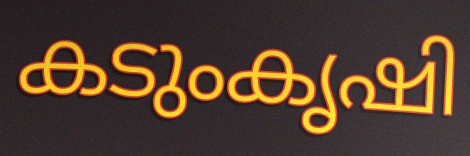
കടുംകൃഷി